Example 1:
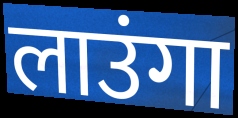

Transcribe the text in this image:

लाउंगा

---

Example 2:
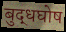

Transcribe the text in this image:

बुद्धघोष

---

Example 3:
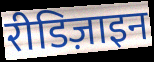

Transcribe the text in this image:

रीडिज़ाइन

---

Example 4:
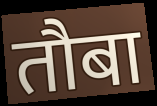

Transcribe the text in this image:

तौबा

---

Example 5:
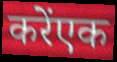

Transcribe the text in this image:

करेंएक